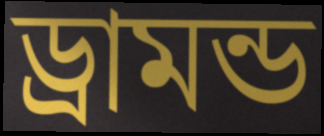
ড্রামন্ড